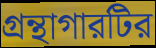
গ্রন্থাগারটির